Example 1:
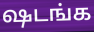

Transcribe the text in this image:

ஷடங்க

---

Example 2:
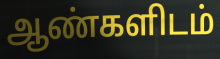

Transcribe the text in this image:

ஆண்களிடம்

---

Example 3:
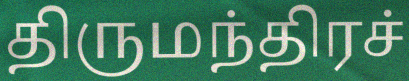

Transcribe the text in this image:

திருமந்திரச்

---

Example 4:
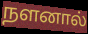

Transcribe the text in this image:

நளனால்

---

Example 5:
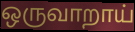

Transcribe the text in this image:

ஒருவாறாய்